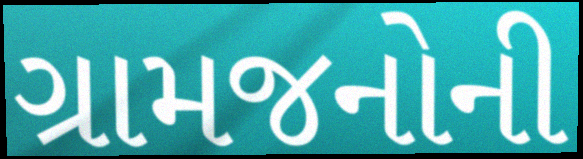
ગ્રામજનોની